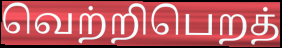
வெற்றிபெறத்